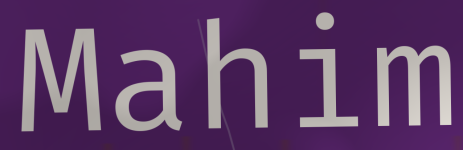
Mahim